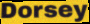
Dorsey